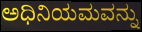
ಅಧಿನಿಯಮವನ್ನು